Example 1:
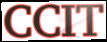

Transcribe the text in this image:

CCIT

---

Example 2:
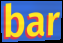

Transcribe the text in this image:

bar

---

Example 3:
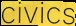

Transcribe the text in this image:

civics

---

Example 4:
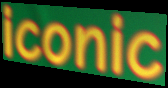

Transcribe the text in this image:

iconic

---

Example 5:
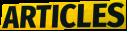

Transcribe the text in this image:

ARTICLES